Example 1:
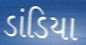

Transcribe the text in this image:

ડાંડિયા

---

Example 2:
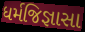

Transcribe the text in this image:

ધર્મજિજ્ઞાસા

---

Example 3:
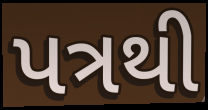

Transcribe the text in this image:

પત્રથી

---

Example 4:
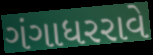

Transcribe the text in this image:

ગંગાધરરાવે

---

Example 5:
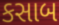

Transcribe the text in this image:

કસાબ